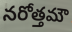
నరోత్తమౌ